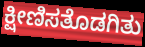
ಕ್ಷೀಣಿಸತೊಡಗಿತು